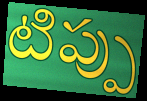
టిప్పు